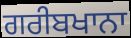
ਗਰੀਬਖਾਨਾ